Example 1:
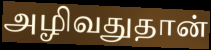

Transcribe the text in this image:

அழிவதுதான்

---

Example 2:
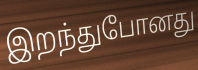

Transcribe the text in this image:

இறந்துபோனது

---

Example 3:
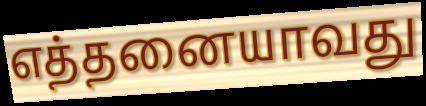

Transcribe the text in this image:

எத்தனையாவது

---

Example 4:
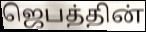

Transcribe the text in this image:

ஜெபத்தின்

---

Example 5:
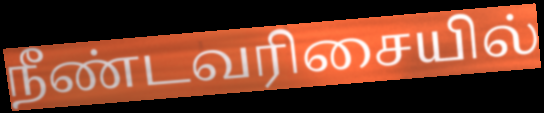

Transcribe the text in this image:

நீண்டவரிசையில்